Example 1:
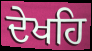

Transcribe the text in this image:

ਦੇਖਹਿ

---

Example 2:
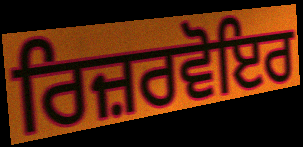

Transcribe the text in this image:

ਰਿਜ਼ਰਵੋਇਰ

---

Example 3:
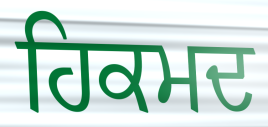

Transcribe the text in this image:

ਹਿਕਮਦ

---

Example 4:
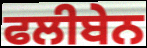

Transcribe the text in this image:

ਫਲੀਬੇਨ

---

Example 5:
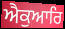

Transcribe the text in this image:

ਐਕੁਆਰਿ